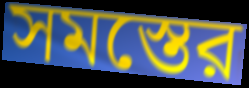
সমস্তের